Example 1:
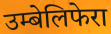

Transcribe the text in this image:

उम्बेलिफेरा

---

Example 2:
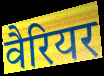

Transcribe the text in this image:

वैरियर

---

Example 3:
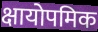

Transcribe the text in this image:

क्षायोपमिक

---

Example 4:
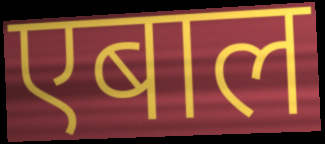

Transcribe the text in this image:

एबाल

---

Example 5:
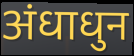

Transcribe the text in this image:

अंधाधुन